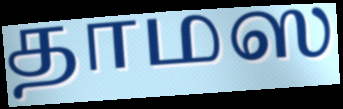
தாமஸ